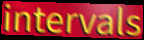
intervals